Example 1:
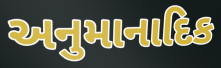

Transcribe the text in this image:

અનુમાનાદિક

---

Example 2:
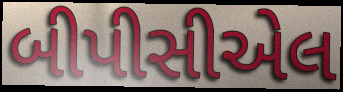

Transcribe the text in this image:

બીપીસીએલ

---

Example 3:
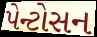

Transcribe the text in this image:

પેન્ટોસન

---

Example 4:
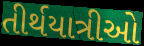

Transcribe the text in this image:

તીર્થયાત્રીઓ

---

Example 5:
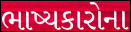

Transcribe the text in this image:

ભાષ્યકારોના